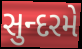
સુન્દરમે